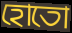
হোতো